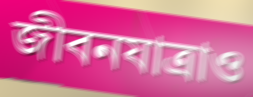
জীবনযাত্রাও